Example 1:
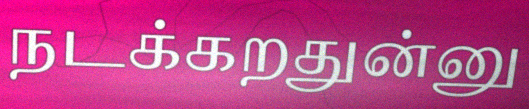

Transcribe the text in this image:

நடக்கறதுன்னு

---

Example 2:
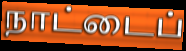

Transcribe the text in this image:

நாட்டைப்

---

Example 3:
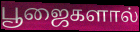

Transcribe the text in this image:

பூஜைகளால்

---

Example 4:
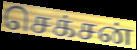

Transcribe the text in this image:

செக்சன்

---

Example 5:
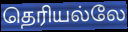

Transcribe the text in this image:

தெரியல்லே